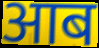
आब